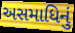
અસમાધિનું